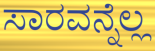
ಸಾರವನ್ನೆಲ್ಲ